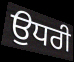
ਉਧਰੀ